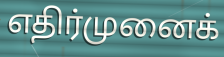
எதிர்முனைக்